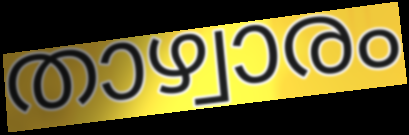
താഴ്വാരം